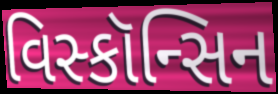
વિસ્કૉન્સિન